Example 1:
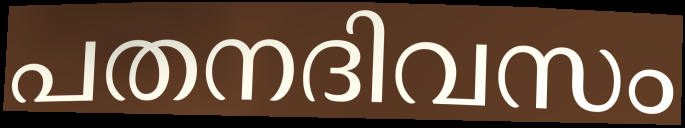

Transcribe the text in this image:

പതനദിവസം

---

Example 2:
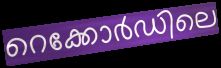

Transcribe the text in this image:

റെക്കോർഡിലെ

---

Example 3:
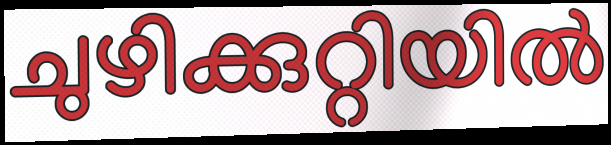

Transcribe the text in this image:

ചുഴിക്കുറ്റിയിൽ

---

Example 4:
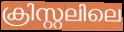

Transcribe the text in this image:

ക്രിസ്റ്റലിലെ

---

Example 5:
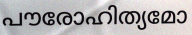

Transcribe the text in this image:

പൗരോഹിത്യമോ